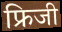
फ्रिजी